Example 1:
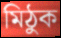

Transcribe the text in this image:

মিঠুক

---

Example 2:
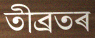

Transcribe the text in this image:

তীব্ৰতৰ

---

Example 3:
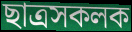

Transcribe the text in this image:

ছাত্ৰসকলক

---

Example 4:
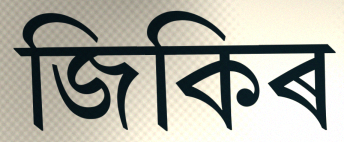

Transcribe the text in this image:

জিকিৰ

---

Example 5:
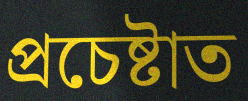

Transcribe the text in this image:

প্ৰচেষ্টাত